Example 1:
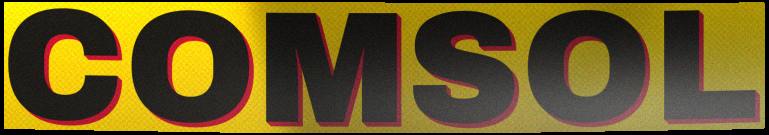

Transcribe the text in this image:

COMSOL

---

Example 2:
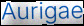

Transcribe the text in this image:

Aurigae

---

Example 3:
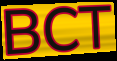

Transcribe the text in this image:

BCT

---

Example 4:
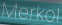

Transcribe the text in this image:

Merkol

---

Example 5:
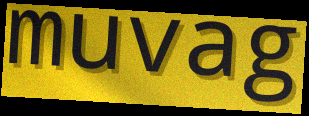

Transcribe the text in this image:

muvag